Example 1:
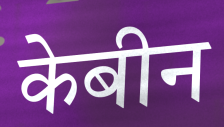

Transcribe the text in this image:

केबीन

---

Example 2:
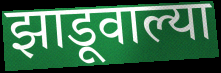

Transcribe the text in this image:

झाडूवाल्या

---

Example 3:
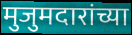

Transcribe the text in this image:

मुजुमदारांच्या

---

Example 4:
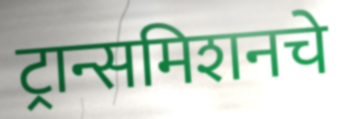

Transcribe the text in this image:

ट्रान्समिशनचे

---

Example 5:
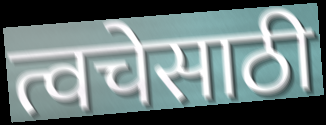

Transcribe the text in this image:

त्वचेसाठी